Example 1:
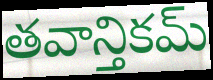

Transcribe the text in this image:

తవాన్తికమ్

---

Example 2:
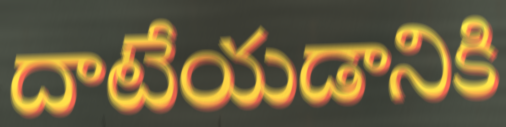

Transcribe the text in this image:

దాటేయడానికి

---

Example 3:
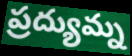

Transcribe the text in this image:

ప్రద్యుమ్న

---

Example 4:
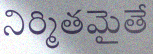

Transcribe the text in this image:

నిర్మితమైతే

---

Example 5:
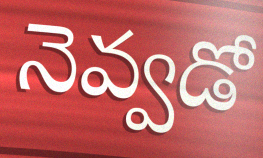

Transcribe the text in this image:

నెవ్వడో